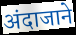
अंदाजाने